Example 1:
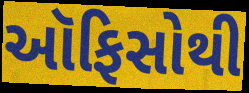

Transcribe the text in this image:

ઑફિસોથી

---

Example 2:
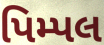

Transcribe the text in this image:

પિમ્પલ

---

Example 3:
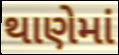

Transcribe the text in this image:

થાણેમાં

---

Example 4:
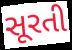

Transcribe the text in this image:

સૂરતી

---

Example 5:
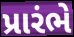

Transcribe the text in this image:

પ્રારંભે